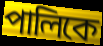
পালিকে